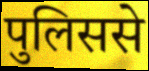
पुलिससे